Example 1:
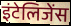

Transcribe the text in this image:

इंटेलिजेंस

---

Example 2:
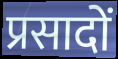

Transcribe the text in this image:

प्रसादों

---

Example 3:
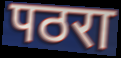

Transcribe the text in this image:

पठरा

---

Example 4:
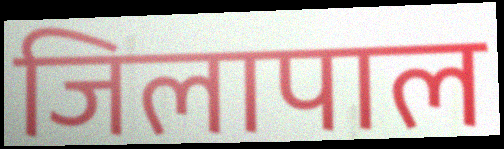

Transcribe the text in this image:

जिलापाल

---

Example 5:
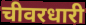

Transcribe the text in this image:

चीवरधारी